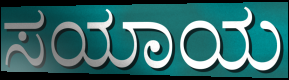
ಸಯಾಯ